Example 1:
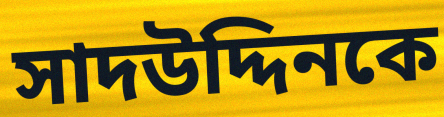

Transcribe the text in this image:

সাদউদ্দিনকে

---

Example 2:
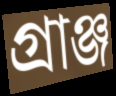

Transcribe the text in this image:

গ্রাঞ্জ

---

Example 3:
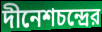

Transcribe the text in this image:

দীনেশচন্দ্রের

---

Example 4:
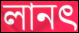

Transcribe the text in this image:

লানৎ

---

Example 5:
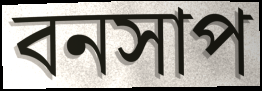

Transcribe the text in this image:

বনসাপ